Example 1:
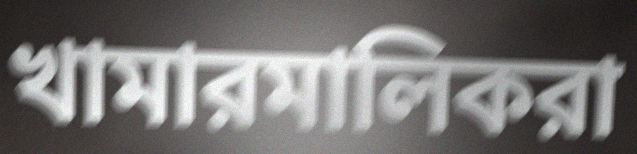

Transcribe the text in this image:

খামারমালিকরা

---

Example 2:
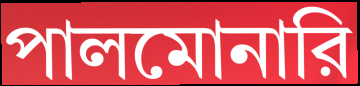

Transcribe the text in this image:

পালমোনারি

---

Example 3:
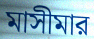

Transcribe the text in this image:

মাসীমার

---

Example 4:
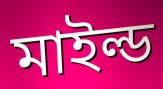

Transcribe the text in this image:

মাইল্ড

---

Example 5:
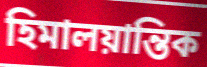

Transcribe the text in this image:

হিমালয়ান্তিক